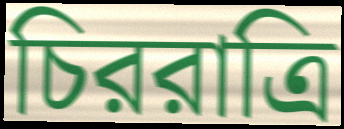
চিররাত্রি